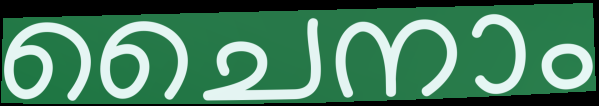
ചൈനാം